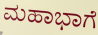
ಮಹಾಭಾಗೆ